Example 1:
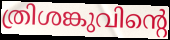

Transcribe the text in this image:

ത്രിശങ്കുവിന്റെ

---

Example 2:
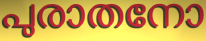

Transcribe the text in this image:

പുരാതനോ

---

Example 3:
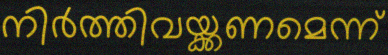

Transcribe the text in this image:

നിർത്തിവയ്ക്കണമെന്ന്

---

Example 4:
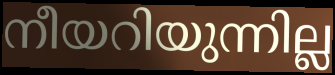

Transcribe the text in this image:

നീയറിയുന്നില്ല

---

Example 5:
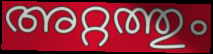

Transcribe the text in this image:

അറ്റത്തും